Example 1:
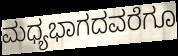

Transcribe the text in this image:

ಮಧ್ಯಭಾಗದವರೆಗೂ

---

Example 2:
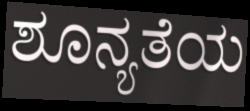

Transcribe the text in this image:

ಶೂನ್ಯತೆಯ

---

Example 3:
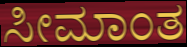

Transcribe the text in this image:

ಸೀಮಾಂತ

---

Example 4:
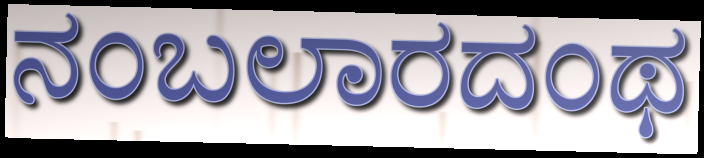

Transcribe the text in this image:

ನಂಬಲಾರದಂಥ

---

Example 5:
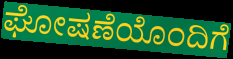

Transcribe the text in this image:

ಘೋಷಣೆಯೊಂದಿಗೆ